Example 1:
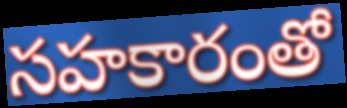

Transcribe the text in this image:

సహకారంతో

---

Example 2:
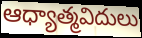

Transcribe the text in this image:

ఆధ్యాత్మవిదులు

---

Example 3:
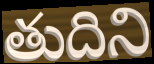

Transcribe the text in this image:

తుదిని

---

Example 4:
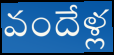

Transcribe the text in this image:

వందేళ్ల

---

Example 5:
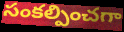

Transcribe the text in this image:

సంకల్పించగా